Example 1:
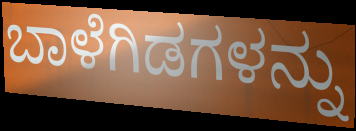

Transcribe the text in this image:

ಬಾಳೆಗಿಡಗಳನ್ನು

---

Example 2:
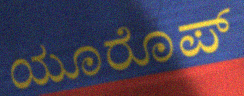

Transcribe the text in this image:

ಯೂರೊಪ್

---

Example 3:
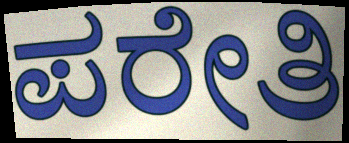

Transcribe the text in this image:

ಪರೇತಿ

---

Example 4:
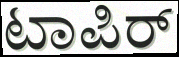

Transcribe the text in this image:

ಟಾಪಿರ್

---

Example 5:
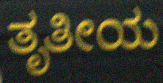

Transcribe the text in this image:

ತೃತೀಯ